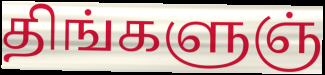
திங்களுஞ்